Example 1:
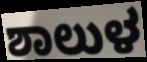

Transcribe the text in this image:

ಶಾಲುಳ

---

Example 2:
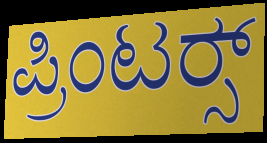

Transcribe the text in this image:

ಪ್ರಿಂಟರ‍್ಸ್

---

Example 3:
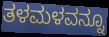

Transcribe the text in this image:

ತಳಮಳವನ್ನೂ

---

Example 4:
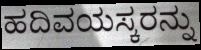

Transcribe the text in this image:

ಹದಿವಯಸ್ಕರನ್ನು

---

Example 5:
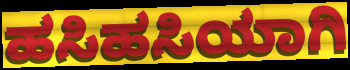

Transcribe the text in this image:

ಹಸಿಹಸಿಯಾಗಿ